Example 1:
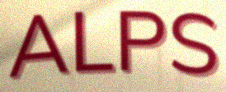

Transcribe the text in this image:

ALPS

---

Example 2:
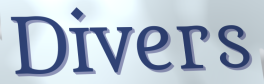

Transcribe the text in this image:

Divers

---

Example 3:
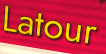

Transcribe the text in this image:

Latour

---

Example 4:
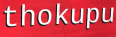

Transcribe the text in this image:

thokupu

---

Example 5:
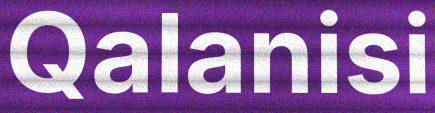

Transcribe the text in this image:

Qalanisi